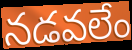
నడవలేం